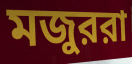
মজুররা